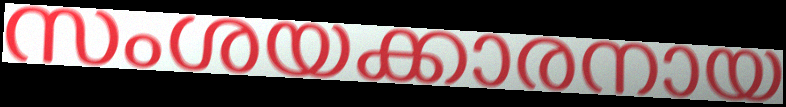
സംശയക്കാരനായ